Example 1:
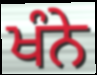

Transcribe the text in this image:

ਖੰਨੇ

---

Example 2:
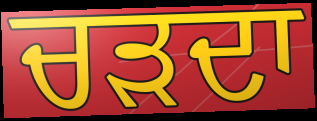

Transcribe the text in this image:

ਚੜਦਾ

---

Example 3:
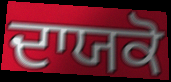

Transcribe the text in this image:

ਦਾਯਕੋ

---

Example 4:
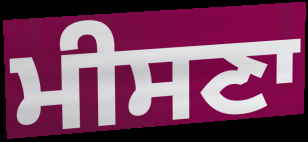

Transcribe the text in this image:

ਮੀਸਣਾ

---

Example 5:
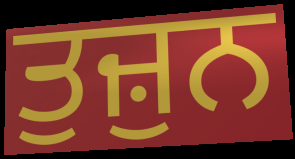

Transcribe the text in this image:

ਤੁਜ਼ੁਨ